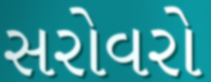
સરોવરો